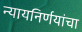
न्यायनिर्णयांचा